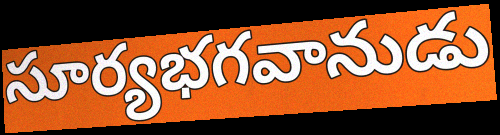
సూర్యభగవానుడు